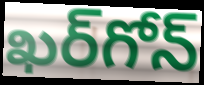
ఖర్‌గోన్